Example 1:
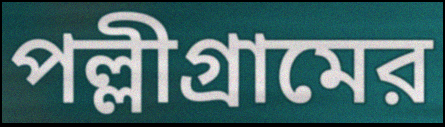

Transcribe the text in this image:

পল্লীগ্রামের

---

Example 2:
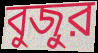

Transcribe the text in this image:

বুজুর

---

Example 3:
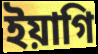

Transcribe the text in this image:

ইয়াগি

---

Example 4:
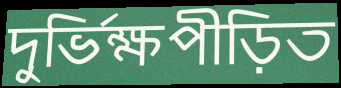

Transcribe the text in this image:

দুর্ভিক্ষপীড়িত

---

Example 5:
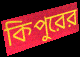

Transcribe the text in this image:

কিপুরের